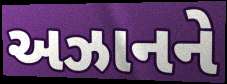
અઝાનને